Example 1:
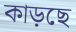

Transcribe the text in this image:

কাড়ছে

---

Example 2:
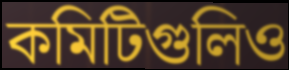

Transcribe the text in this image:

কমিটিগুলিও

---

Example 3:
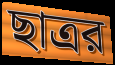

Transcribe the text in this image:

ছাত্রর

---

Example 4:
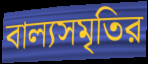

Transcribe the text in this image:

বাল্যসমৃতির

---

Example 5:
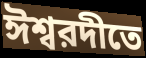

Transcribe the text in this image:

ঈশ্বরদীতে